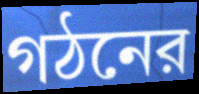
গঠনের